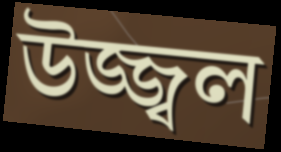
উজ্জ্বল